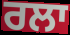
ਰਲਾ